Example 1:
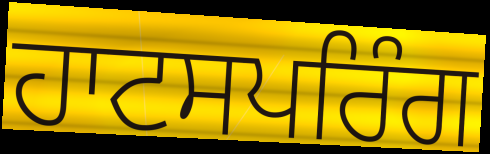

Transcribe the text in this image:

ਹਾਟਸਪਰਿੰਗ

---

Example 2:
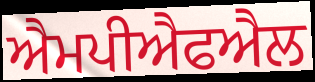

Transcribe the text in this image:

ਐਮਪੀਐਫਐਲ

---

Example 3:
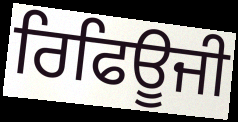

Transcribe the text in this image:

ਰਿਫਿਊਜੀ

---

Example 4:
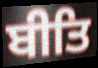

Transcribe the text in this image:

ਬੀਤਿ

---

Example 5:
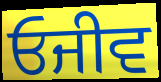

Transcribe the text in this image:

ਓਜੀਵ